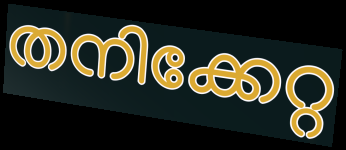
തനിക്കേറ്റ